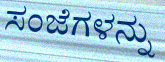
ಸಂಜೆಗಳನ್ನು